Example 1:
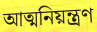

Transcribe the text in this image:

আত্মনিয়ন্ত্রণ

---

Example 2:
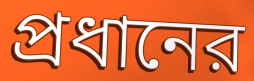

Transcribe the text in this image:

প্রধানের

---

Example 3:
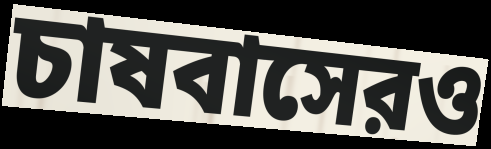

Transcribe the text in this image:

চাষবাসেরও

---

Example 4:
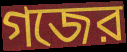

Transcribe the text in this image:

গজের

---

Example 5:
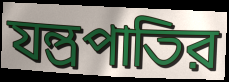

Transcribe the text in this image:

যন্ত্রপাতির